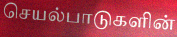
செயல்பாடுகளின்